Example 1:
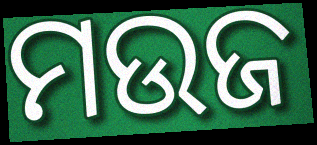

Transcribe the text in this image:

ମଉଜ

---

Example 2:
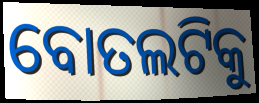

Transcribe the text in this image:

ବୋତଲଟିକୁ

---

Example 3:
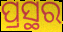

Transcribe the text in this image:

ପ୍ରସ୍ଥର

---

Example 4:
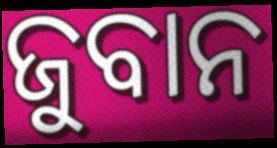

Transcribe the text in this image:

ଜୁବାନ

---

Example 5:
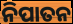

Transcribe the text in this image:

ନିପାତନ